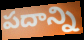
పదాన్ని